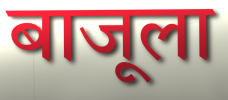
बाजूला